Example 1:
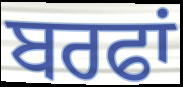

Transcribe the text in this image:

ਬਰਫਾਂ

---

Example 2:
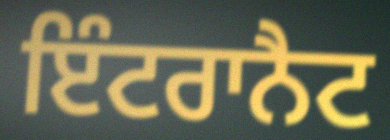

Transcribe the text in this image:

ਇੰਟਰਾਨੈਟ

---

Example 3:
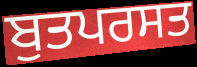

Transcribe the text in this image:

ਬੁਤਪਰਸਤ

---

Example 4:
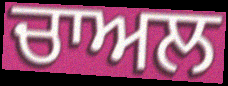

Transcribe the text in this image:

ਚਾਅਲ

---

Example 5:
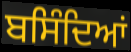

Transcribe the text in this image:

ਬਸਿੰਦਿਆਂ